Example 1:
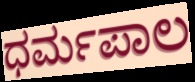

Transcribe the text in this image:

ಧರ್ಮಪಾಲ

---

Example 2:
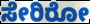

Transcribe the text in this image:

ಸೇರಿರೋ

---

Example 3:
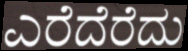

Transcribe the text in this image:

ಎರೆದೆರೆದು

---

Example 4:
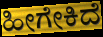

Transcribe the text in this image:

ಹೀಗೇಕಿದೆ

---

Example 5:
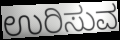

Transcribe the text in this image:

ಉರಿಸುವ